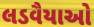
લડવૈયાઓ